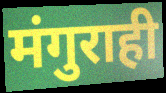
मंगुराही